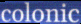
colonic